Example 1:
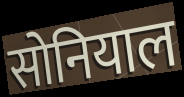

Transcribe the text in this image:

सोनियाल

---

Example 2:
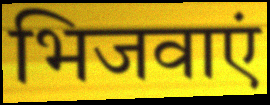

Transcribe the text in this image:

भिजवाएं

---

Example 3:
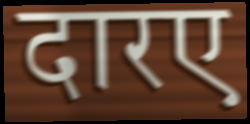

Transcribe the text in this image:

दारए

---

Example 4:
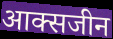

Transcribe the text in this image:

आक्सजीन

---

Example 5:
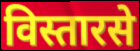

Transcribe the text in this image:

विस्तारसे